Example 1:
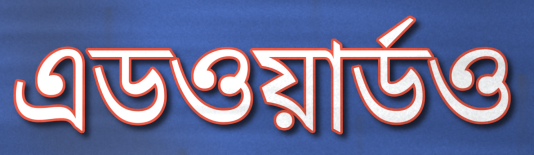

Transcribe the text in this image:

এডওয়ার্ডও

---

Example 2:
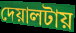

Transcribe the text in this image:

দেয়ালটায়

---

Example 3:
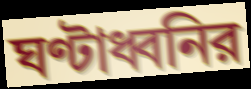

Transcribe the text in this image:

ঘণ্টাধ্বনির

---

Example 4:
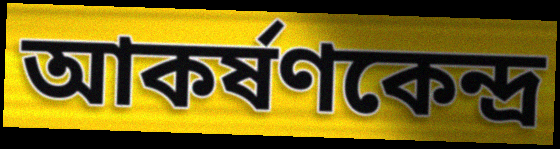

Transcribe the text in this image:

আকর্ষণকেন্দ্র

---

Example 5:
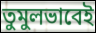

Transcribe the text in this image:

তুমুলভাবেই